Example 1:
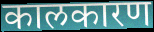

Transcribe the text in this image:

कालकारण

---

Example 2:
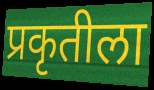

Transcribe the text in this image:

प्रकृतीला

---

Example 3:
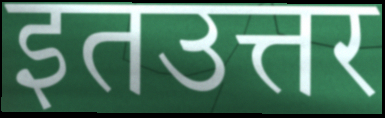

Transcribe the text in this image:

इतउत्तर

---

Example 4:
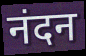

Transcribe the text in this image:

नंदन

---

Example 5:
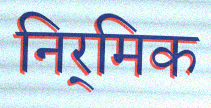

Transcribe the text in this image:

निर्मिक